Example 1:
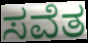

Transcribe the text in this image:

ಸವೆತ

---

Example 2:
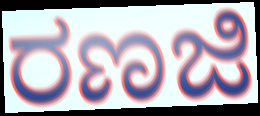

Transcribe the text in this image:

ರಣಜಿ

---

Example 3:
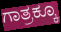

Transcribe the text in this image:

ಗಾತ್ರಕ್ಕೂ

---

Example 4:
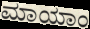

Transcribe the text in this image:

ಮಾಯಾಂ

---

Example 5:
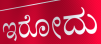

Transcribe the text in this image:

ಇರೋದು